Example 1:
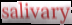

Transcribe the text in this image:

salivary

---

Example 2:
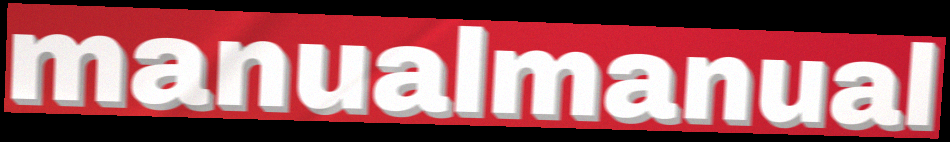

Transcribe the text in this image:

manualmanual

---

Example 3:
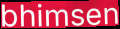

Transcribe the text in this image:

bhimsen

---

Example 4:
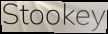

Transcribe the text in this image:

Stookey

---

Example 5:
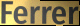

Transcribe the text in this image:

Ferrer